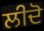
ਲੀਦੋ